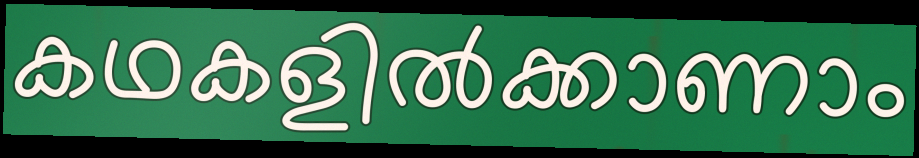
കഥകളിൽക്കാണാം